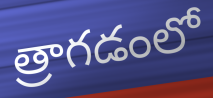
త్రాగడంలో